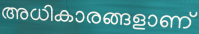
അധികാരങ്ങളാണ്